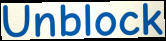
Unblock